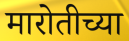
मारोतीच्या